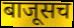
बाजूसच